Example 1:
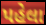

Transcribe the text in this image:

પહેલા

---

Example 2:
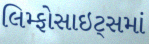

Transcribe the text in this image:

લિમ્ફોસાઇટ્સમાં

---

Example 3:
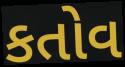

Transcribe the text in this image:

કતોવ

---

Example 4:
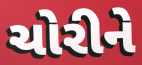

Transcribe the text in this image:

ચોરીને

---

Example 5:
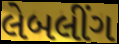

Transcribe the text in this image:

લેબલીંગ